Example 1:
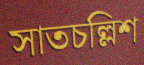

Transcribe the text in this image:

সাতচল্লিশ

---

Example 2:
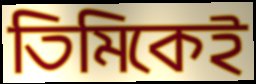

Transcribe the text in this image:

তিমিকেই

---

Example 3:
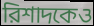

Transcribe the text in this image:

রিশাদকেও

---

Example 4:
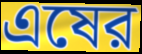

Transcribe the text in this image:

এষের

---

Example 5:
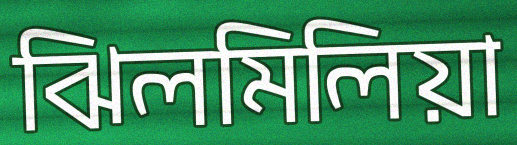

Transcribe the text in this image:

ঝিলমিলিয়া